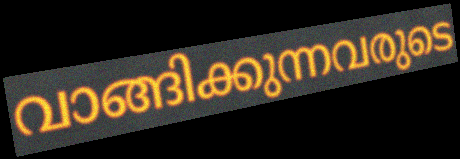
വാങ്ങിക്കുന്നവരുടെ